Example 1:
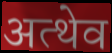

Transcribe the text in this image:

अत्थेव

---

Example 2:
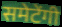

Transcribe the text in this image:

समेटेंगी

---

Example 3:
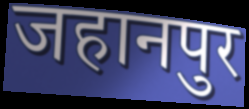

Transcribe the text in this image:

जहानपुर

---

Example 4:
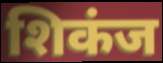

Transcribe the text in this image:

शिकंज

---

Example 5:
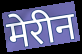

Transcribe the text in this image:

मेरीन